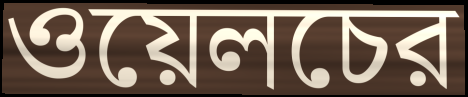
ওয়েলচের